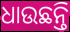
ଧାଉଛନ୍ତି